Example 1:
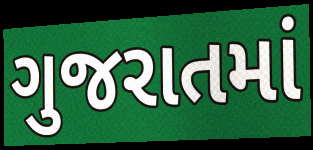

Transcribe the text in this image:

ગુજરાતમાં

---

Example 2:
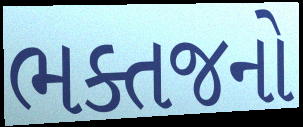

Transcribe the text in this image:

ભક્તજનો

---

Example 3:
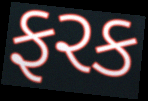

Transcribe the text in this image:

ફરક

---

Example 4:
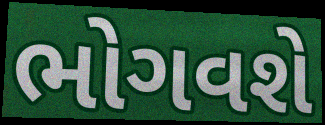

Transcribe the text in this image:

ભોગવશે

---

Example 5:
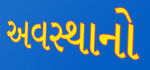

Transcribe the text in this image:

અવસ્થાનો